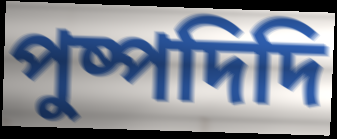
পুষ্পদিদি